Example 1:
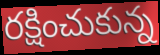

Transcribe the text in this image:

రక్షించుకున్న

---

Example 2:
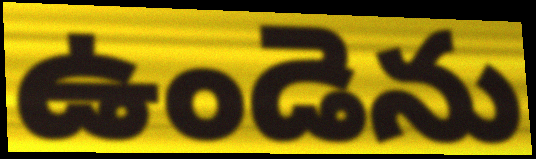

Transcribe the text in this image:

ఉండెను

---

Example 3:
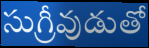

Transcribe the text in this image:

సుగ్రీవుడుతో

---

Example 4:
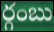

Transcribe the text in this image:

ర్గంబు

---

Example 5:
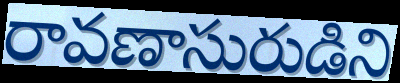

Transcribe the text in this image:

రావణాసురుడిని